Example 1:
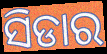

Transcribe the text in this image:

ସିଡାର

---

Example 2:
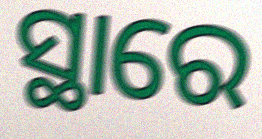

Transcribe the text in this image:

ସ୍ଥାରେ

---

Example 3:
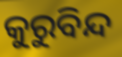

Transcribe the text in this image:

କୁରୁବିନ୍ଦ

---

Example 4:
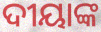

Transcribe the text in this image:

ଦୀୟାଙ୍କ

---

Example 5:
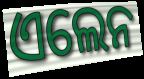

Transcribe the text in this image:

ଏଲେନ